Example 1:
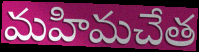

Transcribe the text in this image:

మహిమచేత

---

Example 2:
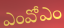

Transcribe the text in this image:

ఎంవోఎం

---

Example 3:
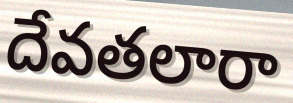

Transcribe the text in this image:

దేవతలారా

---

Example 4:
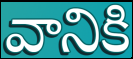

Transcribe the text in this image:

వానికి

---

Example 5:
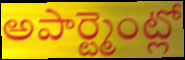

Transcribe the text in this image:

అపార్ట్మెంట్లో